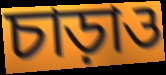
চাড়াও